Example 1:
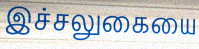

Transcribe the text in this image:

இச்சலுகையை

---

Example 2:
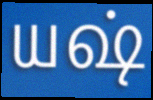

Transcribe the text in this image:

யஷ்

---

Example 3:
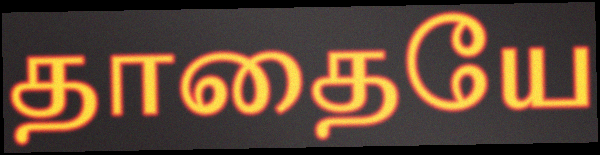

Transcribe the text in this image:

தாதையே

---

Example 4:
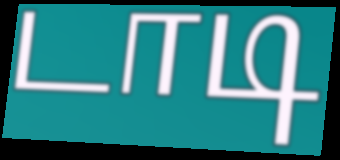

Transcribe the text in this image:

டாடி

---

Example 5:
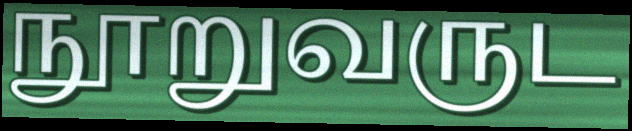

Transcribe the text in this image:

நூறுவருட